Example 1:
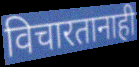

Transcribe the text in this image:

विचारतानाही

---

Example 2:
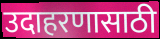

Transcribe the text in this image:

उदाहरणासाठी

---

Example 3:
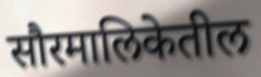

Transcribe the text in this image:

सौरमालिकेतील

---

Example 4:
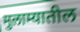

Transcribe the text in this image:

मुलाम्यातील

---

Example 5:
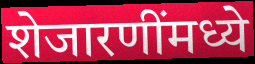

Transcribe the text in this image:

शेजारणींमध्ये